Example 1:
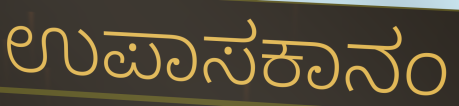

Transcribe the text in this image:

ಉಪಾಸಕಾನಂ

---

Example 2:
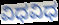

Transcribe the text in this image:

ವಿಧವಿಧ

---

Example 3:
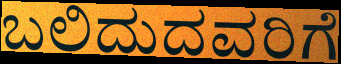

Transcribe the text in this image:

ಬಲಿದುದವರಿಗೆ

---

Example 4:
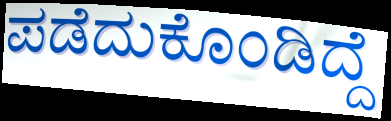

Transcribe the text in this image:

ಪಡೆದುಕೊಂಡಿದ್ದೆ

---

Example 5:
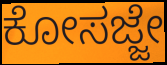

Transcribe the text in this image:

ಕೋಸಜ್ಜೇ